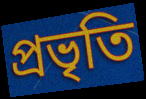
প্ৰভৃতি